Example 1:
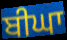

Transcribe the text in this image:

ਬੀਘਾ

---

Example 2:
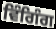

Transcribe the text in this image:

ਵਿੰਗਿੰਗ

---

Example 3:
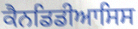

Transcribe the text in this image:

ਕੈਨਡਿਡੀਆਸਿਸ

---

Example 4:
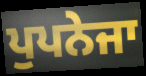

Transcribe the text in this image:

ਪੁਪਨੇਜਾ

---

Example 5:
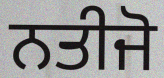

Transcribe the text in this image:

ਨਤੀਜੋ